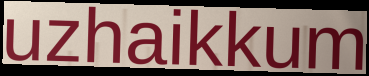
uzhaikkum